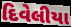
દિવેલીયા